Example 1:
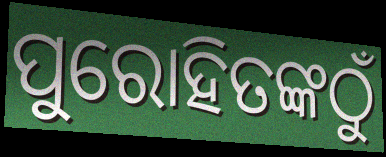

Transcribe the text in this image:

ପୁରୋହିତଙ୍କଠୁଁ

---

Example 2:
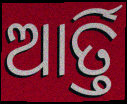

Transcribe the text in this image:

ଆର୍ତ୍ତି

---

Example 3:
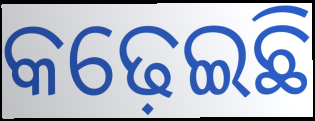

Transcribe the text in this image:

କଢ଼େଇଛି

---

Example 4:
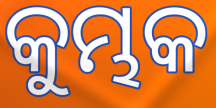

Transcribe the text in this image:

କୁମ୍ଭକ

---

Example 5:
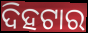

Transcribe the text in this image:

ଦିହଟାର